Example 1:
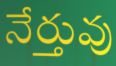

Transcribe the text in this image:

నేర్తువు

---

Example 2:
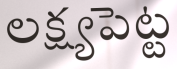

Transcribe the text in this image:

లక్ష్యపెట్ట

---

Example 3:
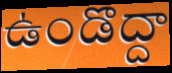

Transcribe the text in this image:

ఉండొద్దా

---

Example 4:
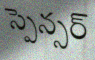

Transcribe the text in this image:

స్పెన్సర్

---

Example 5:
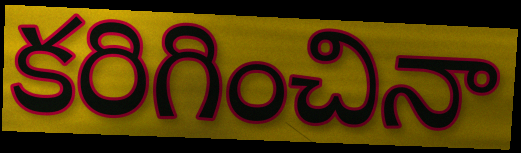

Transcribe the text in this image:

కరిగించినా